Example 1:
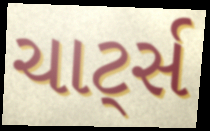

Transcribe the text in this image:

ચાર્ટ્સ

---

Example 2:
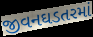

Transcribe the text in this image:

જીવનઘડતરમાં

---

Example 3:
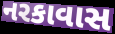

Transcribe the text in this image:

નરકાવાસ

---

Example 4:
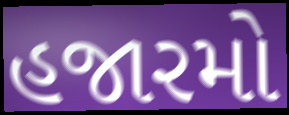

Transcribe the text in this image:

હજારમો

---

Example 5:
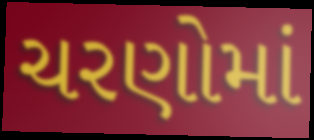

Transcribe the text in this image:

ચરણોમાં